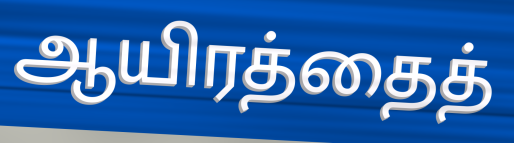
ஆயிரத்தைத்